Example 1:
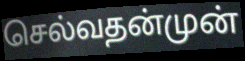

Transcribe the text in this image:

செல்வதன்முன்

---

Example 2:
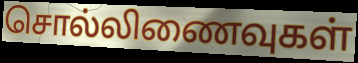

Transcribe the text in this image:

சொல்லிணைவுகள்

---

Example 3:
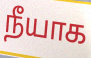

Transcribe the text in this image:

நீயாக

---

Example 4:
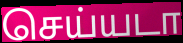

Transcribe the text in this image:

செய்யடா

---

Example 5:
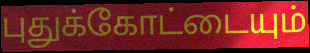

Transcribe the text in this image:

புதுக்கோட்டையும்